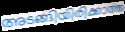
അടങ്ങിയിരിക്കാത്ത